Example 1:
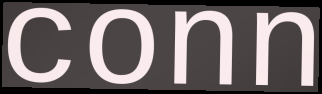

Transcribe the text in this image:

conn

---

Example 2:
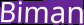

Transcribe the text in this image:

Biman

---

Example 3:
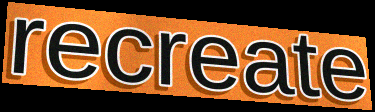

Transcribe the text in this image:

recreate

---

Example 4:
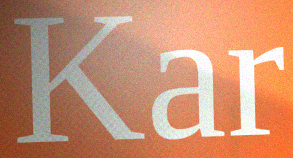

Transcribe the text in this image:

Kar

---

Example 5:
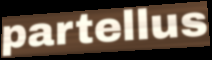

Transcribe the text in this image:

partellus